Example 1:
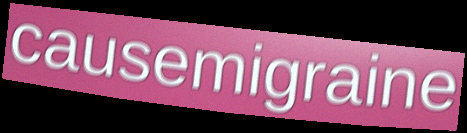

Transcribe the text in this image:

causemigraine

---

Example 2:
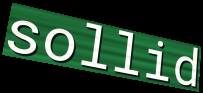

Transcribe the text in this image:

sollid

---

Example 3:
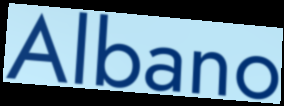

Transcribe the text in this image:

Albano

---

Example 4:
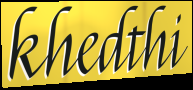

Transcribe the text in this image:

khedthi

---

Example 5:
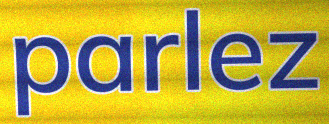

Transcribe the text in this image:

parlez